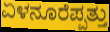
ಏಳನೂರೆಪ್ಪತ್ತು